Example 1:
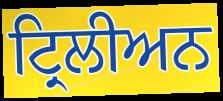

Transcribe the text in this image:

ਟ੍ਰਿਲੀਅਨ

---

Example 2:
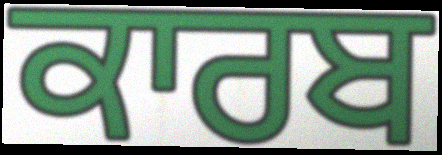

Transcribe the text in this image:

ਕਾਰਬ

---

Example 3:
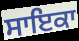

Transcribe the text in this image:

ਸਾਇਕਾ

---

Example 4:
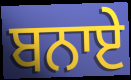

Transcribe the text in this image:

ਬਨਾਏ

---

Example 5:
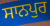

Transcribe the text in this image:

ਸਾਨਪੁਰ